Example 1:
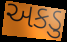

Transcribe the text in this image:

અકડુ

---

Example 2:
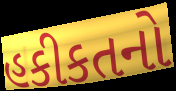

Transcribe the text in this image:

હકીકતનો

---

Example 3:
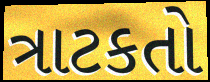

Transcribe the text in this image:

ત્રાટકતો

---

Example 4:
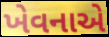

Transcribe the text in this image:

ખેવનાએ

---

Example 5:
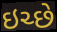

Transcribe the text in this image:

ઇચ્છે